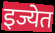
इज्येत